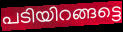
പടിയിറങ്ങട്ടെ